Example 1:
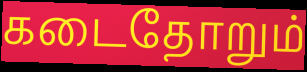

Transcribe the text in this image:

கடைதோறும்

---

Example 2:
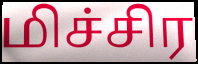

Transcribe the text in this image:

மிச்சிர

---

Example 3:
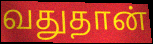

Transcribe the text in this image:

வதுதான்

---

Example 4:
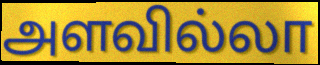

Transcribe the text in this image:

அளவில்லா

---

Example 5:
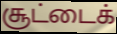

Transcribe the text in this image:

சூட்டைக்